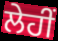
ਲੇਹੀਂ